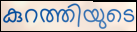
കുറത്തിയുടെ